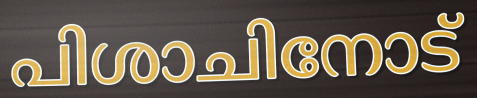
പിശാചിനോട്